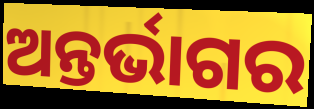
ଅନ୍ତର୍ଭାଗର